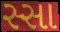
સ્સા